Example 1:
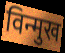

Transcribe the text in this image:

विन्मुख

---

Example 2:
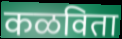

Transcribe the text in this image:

कळविता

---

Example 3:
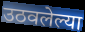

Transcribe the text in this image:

उठवलेल्या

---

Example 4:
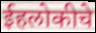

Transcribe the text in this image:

ईहलोकीचे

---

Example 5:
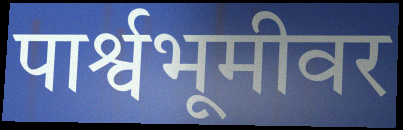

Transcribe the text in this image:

पार्श्वभूमीवर